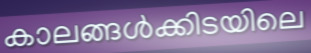
കാലങ്ങൾക്കിടയിലെ